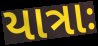
યાત્રાઃ